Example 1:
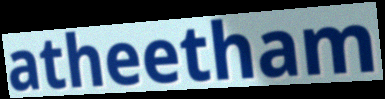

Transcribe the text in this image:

atheetham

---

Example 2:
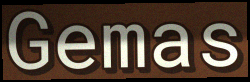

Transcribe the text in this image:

Gemas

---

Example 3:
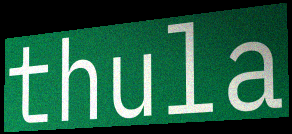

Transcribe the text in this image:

thula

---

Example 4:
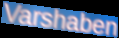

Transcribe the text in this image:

Varshaben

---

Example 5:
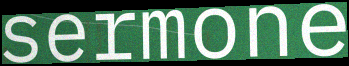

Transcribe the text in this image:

sermone